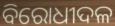
ବିରୋଧୀଦଳ